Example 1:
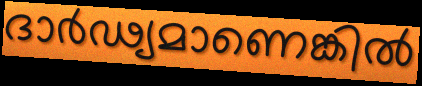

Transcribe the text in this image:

ദാർഢ്യമാണെങ്കിൽ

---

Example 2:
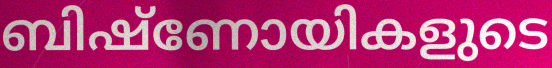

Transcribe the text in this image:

ബിഷ്ണോയികളുടെ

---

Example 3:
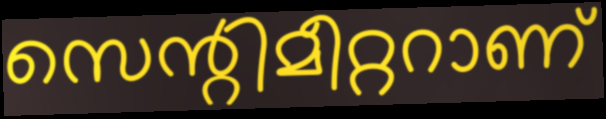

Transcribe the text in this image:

സെന്റിമീറ്ററാണ്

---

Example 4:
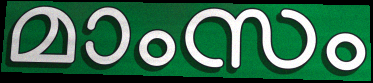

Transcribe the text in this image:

മാംസം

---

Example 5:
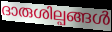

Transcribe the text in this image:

ദാരുശില്പങ്ങൾ